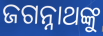
ଜଗନ୍ନାଥଙ୍କୁ